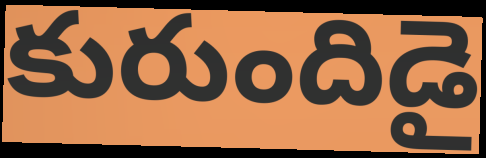
కురుందిడై